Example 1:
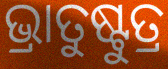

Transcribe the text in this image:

ଭ୍ରାତୁଷ୍ଟୁତ୍ର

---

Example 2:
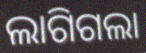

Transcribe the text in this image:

ଲାଗିଗଲା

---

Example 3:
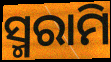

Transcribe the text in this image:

ସ୍ମରାମି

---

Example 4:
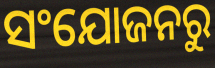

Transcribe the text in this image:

ସଂଯୋଜନରୁ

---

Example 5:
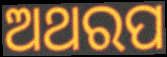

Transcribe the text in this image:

ଅଥରପ